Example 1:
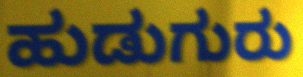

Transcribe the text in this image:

ಹುಡುಗುರು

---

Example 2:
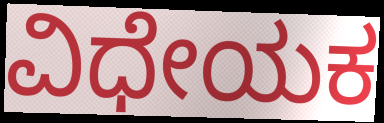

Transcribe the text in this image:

ವಿಧೇಯಕ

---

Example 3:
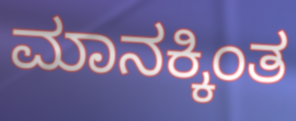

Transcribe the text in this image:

ಮಾನಕ್ಕಿಂತ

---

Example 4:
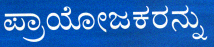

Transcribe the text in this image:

ಪ್ರಾಯೋಜಕರನ್ನು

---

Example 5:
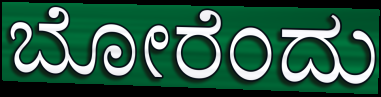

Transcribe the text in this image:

ಬೋರೆಂದು